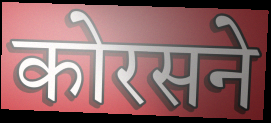
कोरसने